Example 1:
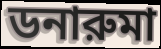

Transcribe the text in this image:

ডনারুমা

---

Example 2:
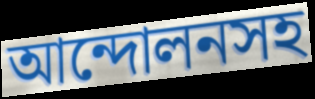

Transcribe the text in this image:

আন্দোলনসহ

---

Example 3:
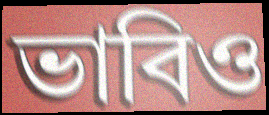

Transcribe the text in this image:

ভাবিও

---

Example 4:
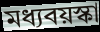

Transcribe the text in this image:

মধ্যবয়স্কা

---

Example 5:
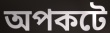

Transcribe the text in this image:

অপকটে